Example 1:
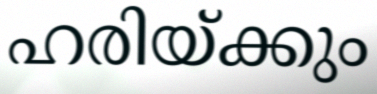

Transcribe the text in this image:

ഹരിയ്ക്കും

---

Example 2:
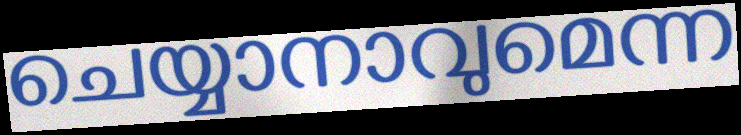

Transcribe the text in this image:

ചെയ്യാനാവുമെന്ന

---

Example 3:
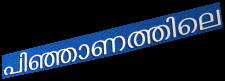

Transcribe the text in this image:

പിഞ്ഞാണത്തിലെ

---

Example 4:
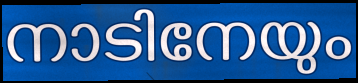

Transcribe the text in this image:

നാടിനേയും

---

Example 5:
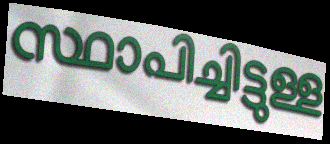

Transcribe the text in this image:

സ്ഥാപിച്ചിട്ടുള്ള